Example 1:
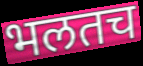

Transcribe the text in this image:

भलतच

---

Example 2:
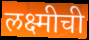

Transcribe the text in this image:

लक्ष्मीची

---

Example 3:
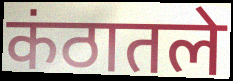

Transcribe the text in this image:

कंठातले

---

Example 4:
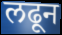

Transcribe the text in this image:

लढून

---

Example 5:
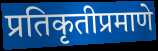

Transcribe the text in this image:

प्रतिकृतीप्रमाणे